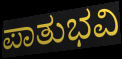
ಪಾತುಭವಿ